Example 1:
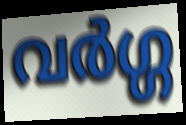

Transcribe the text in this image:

വർഗ്ഗ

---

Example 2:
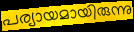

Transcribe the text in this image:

പര്യായമായിരുന്നു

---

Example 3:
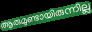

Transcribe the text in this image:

ആരുമുണ്ടായിരുന്നില്ല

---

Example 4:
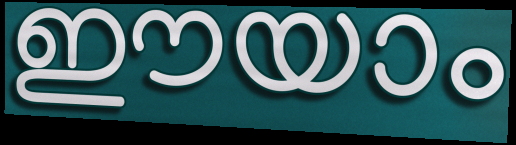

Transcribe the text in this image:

ഈയാം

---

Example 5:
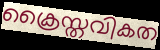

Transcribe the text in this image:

ക്രൈസ്തവികത